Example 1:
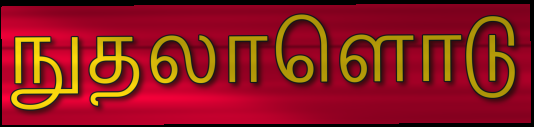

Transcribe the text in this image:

நுதலாளொடு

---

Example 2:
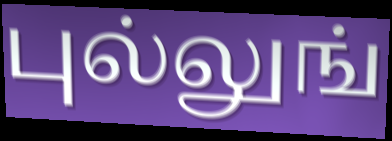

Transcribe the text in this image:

புல்லுங்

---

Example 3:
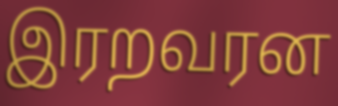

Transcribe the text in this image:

இரறவரன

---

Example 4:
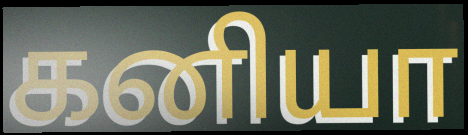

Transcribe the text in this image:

கனியா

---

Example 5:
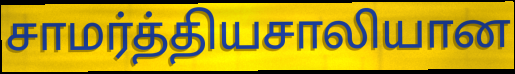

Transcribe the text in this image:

சாமர்த்தியசாலியான